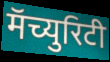
मॅच्युरिटी